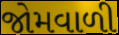
જોમવાળી